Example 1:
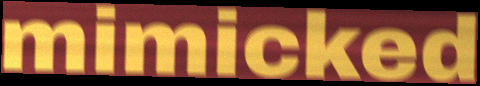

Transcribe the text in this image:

mimicked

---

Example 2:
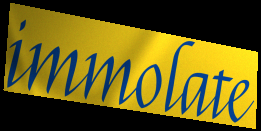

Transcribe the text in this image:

immolate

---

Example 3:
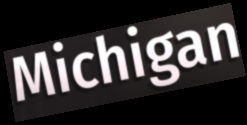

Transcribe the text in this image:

Michigan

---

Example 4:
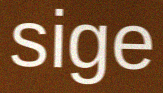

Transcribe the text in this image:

sige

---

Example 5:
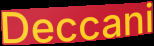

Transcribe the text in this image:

Deccani